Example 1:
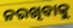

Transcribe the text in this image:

ନରଖିବାକୁ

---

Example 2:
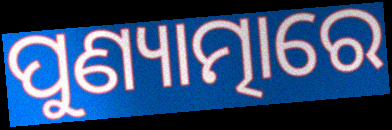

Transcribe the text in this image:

ପୁଣ୍ୟାତ୍ମାରେ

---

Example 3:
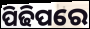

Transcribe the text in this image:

ପିଢିପରେ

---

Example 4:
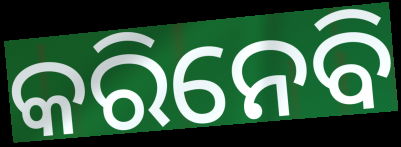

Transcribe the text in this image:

କରିନେବି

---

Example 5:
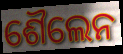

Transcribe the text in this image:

ଶୈଲେନ